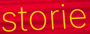
storie